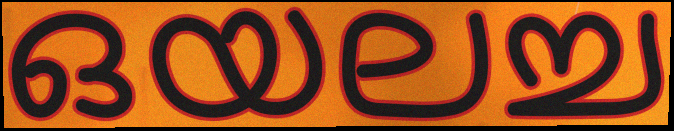
ഒയലച്ച